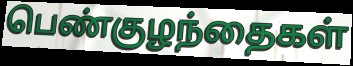
பெண்குழந்தைகள்